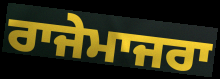
ਰਾਜੇਮਾਜਰਾ